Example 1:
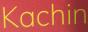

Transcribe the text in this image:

Kachin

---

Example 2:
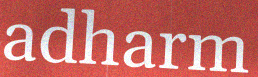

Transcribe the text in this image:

adharm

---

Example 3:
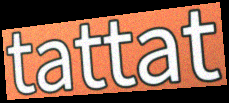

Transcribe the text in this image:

tattat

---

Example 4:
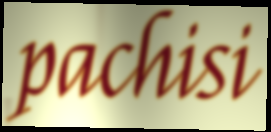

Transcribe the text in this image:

pachisi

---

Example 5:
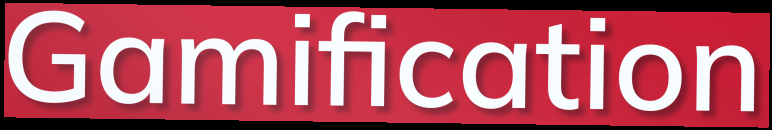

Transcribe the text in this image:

Gamification